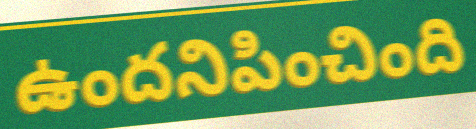
ఉందనిపించింది